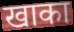
खाका